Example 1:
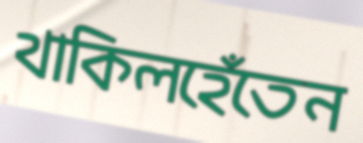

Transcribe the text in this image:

থাকিলহেঁতেন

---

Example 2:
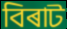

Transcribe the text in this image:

বিৰাট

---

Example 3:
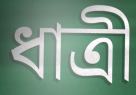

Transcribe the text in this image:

ধাত্ৰী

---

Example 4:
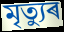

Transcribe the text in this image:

মৃত্যুৰ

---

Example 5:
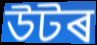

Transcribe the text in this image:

উটৰ